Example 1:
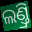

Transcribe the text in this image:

ଲଣ୍ତ୍ରି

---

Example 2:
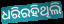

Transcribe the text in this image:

ଧରିରହିଥିଲି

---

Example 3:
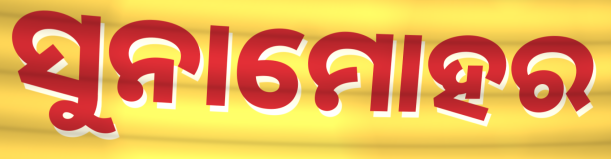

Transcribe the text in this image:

ସୁନାମୋହର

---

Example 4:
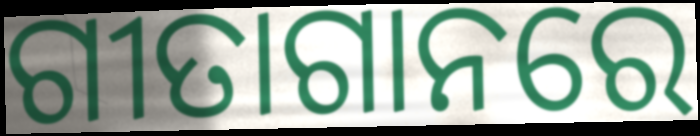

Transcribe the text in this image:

ଗୀତାଗାନରେ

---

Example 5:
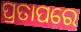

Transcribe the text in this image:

ପ୍ରତାପରେ